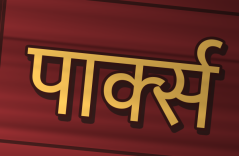
पार्क्‍स